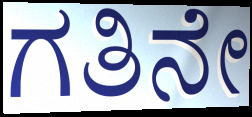
ಗತಿನೇ